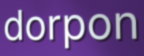
dorpon